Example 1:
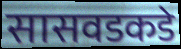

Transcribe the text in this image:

सासवडकडे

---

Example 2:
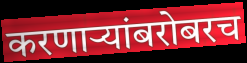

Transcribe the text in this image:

करणाऱ्यांबरोबरच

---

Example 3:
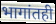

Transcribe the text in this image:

भागांतही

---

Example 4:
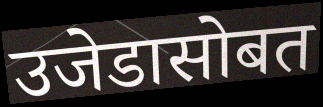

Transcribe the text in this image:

उजेडासोबत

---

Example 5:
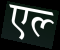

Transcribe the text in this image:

एल्‍